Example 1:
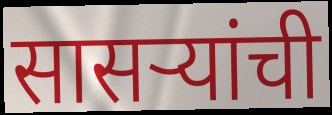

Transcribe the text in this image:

सासऱ्यांची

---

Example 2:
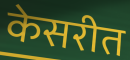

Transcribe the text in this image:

केसरीत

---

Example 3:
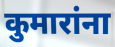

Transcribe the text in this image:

कुमारांना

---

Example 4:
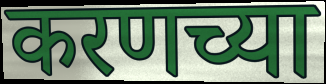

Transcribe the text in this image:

करणच्या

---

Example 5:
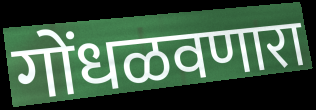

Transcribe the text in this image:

गोंधळवणारा